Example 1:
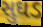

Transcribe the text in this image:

સુઘડ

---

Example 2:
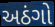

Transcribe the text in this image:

અઠંગો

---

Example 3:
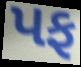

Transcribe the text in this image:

પફ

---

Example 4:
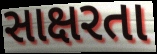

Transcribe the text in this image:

સાક્ષરતા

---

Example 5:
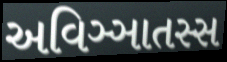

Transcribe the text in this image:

અવિઞ્ઞાતસ્સ